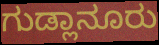
ಗುಡ್ಲಾನೂರು